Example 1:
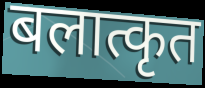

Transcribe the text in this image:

बलात्कृत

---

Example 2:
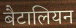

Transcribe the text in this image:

बैटालियन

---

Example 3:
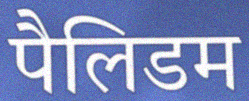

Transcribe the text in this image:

पैलिडम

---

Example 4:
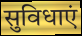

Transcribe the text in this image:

सुविधाएं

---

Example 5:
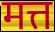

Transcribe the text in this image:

मत्त